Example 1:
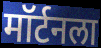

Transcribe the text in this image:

मॉर्टनला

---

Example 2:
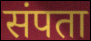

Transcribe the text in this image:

संपता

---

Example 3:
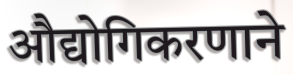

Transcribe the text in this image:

औद्योगिकरणाने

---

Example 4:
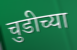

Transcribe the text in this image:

चुडीच्या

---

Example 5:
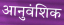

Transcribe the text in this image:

आनुवंशिक